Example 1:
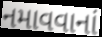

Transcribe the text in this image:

નમાવવાનાં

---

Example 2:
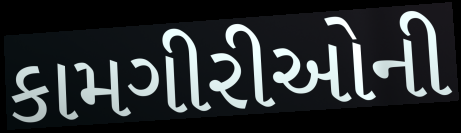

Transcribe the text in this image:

કામગીરીઓની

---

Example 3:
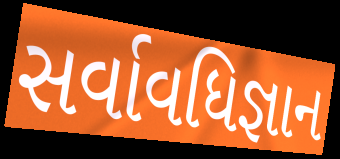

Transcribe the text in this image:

સર્વાવધિજ્ઞાન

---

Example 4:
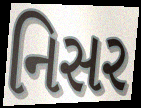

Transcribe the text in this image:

નિસર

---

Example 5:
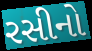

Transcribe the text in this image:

રસીનો